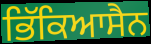
ਭਿੱਕਿਆਸੈਨ